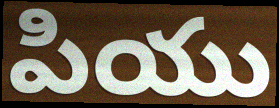
పియు